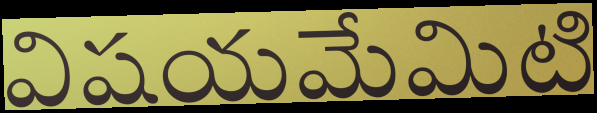
విషయమేమిటి